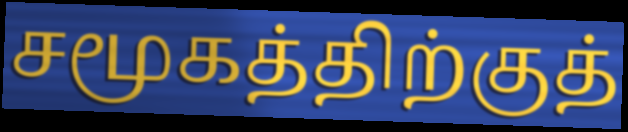
சமூகத்திற்குத்